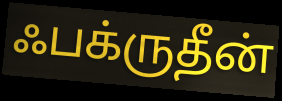
ஃபக்ருதீன்